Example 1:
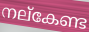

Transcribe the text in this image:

നല്കേണ്ട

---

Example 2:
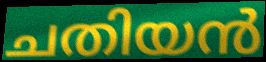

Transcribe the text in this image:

ചതിയൻ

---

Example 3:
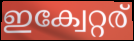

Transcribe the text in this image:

ഇക്വേറ്റര്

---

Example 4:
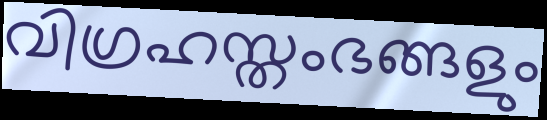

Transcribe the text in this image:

വിഗ്രഹസ്തംഭങ്ങളും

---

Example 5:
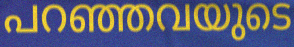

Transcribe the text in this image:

പറഞ്ഞവയുടെ